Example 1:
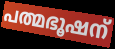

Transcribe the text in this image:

പത്മഭൂഷന്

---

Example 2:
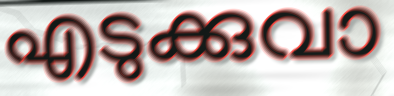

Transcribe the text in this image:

എടുക്കുവാ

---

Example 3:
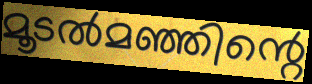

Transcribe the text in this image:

മൂടൽമഞ്ഞിന്റെ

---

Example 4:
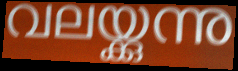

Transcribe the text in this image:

വലയ്ക്കുന്നു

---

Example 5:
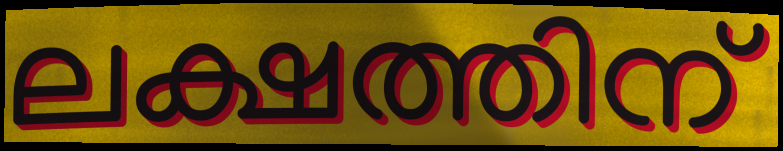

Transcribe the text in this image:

ലക്ഷത്തിന്